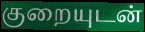
குறையுடன்